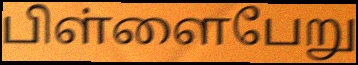
பிள்ளைபேறு